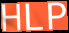
HLP